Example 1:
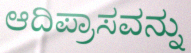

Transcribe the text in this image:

ಆದಿಪ್ರಾಸವನ್ನು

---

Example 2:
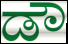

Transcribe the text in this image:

ಡೌ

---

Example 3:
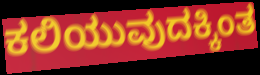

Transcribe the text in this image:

ಕಲಿಯುವುದಕ್ಕಿಂತ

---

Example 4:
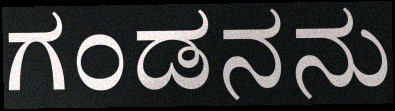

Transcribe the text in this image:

ಗಂಡನನು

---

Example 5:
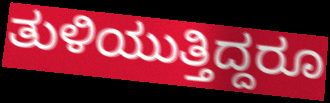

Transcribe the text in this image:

ತುಳಿಯುತ್ತಿದ್ದರೂ